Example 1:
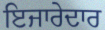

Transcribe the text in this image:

ਇਜਾਰੇਦਾਰ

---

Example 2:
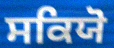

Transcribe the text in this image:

ਸਕਿਯੋ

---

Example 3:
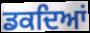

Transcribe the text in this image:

ਡਕਦਿਆਂ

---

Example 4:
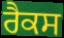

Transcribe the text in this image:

ਰੈਕਸ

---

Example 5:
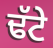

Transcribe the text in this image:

ਢੱਟੇ